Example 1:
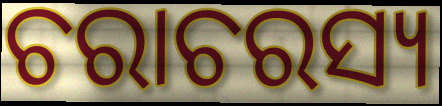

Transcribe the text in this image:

ଚରାଚରସ୍ୟ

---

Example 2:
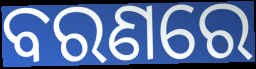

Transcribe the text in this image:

ବରଣରେ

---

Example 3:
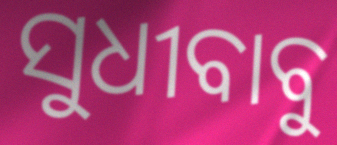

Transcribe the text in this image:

ସୁଧୀବାବୁ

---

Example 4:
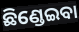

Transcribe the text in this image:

ଛିଣ୍ଡେଇବା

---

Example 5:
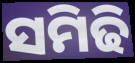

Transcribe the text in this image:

ସମିଢି